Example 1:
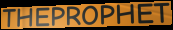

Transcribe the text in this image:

THEPROPHET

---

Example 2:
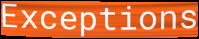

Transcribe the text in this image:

Exceptions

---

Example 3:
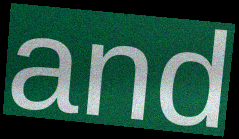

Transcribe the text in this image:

and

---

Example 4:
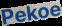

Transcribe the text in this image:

Pekoe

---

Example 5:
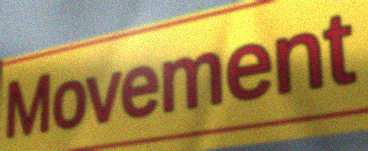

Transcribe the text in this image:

Movement